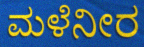
ಮಳೆನೀರ